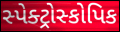
સ્પેક્ટ્રોસ્કોપિક